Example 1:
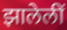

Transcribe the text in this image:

झालेलीं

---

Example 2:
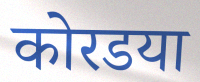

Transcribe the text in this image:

कोरडया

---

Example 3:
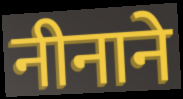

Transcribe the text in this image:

नीनाने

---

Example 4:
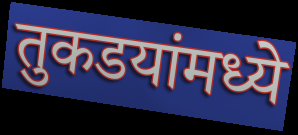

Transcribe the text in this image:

तुकडयांमध्ये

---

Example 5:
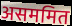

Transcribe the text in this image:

असममित